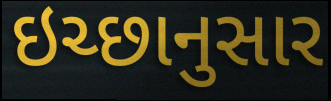
ઇચ્છાનુસાર